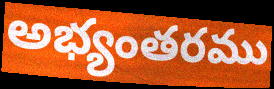
అభ్యంతరము